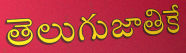
తెలుగుజాతికే